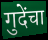
गुदेंचा